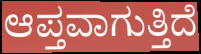
ಆಪ್ತವಾಗುತ್ತಿದೆ